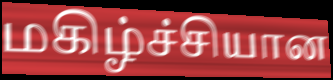
மகிழ்ச்சியான